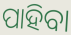
ପାହିବା